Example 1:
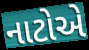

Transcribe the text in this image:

નાટોએ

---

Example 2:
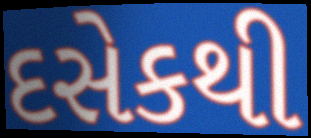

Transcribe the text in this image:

દસેકથી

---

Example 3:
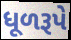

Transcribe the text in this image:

ધૂળરૂપે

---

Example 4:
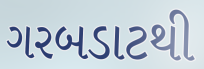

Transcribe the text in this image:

ગરબડાટથી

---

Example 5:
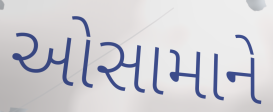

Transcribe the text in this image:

ઓસામાને